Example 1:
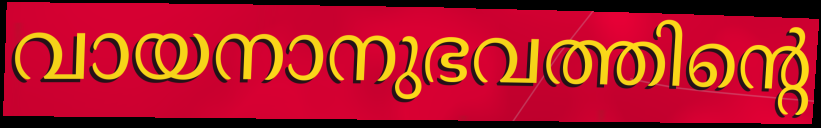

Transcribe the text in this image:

വായനാനുഭവത്തിന്റെ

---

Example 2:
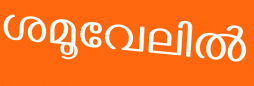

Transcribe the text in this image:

ശമൂവേലിൽ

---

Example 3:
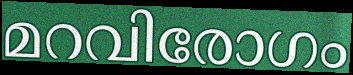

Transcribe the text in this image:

മറവിരോഗം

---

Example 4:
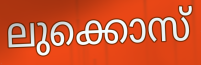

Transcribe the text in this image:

ലുക്കൊസ്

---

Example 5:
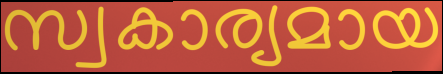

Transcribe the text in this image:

സ്വകാര്യമായ